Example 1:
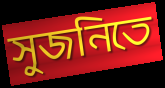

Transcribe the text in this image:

সুজনিতে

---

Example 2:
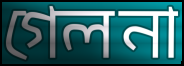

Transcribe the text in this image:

গেলনা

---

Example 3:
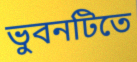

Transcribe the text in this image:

ভুবনটিতে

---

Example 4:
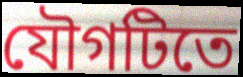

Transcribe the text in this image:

যৌগটিতে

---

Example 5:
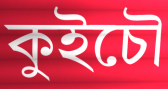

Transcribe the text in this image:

কুইচৌ